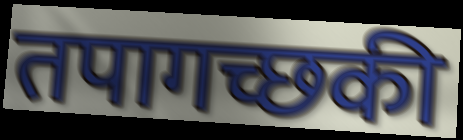
तपागच्छकी